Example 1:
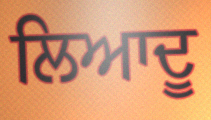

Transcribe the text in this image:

ਲਿਆਦੂ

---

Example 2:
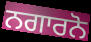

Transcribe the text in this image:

ਨਗਾਰਨੋ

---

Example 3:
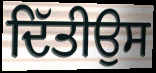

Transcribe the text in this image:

ਦਿੱਤੀਉਸ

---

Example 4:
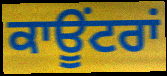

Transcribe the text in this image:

ਕਾਊਂਟਰਾਂ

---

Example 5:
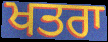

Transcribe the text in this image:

ਖਤਰਾ